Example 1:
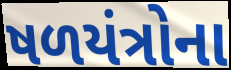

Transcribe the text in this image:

ષળયંત્રોના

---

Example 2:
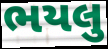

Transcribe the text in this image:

ભયલુ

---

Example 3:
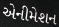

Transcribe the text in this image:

એનીમેશન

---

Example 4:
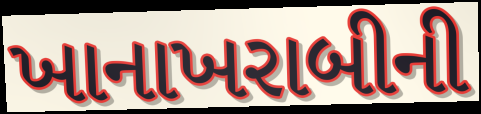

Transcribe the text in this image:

ખાનાખરાબીની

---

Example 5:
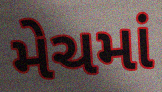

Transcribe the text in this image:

મેચમાં